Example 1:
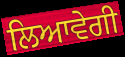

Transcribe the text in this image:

ਲਿਆਵੇਗੀ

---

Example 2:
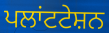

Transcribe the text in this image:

ਪਲਾਂਟਟੇਸ਼ਨ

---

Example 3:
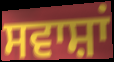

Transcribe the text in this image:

ਸਵਾਸ਼ਾਂ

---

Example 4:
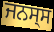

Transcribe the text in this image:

ਜਨਸ੍ਸ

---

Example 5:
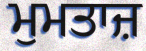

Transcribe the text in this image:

ਮੁਮਤਾਜ਼